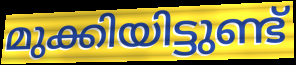
മുക്കിയിട്ടുണ്ട്